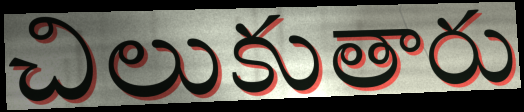
చిలుకుతారు